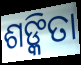
ଶଙ୍କିତା